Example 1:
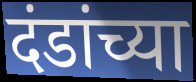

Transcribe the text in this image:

दंडांच्या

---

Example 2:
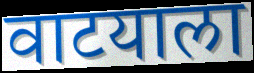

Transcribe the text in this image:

वाटयाला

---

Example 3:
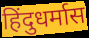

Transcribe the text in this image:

हिंदुधर्मास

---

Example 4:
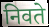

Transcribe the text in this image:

निवते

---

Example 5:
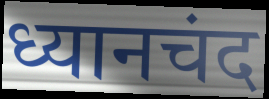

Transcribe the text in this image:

ध्यानचंद